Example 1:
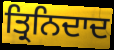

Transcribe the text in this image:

ਤ੍ਰਿਨਿਦਾਦ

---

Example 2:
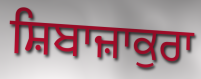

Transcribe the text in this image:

ਸ਼ਿਬਾਜ਼ਾਕੁਰਾ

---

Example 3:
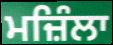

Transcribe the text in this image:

ਮਜ਼ਿੰਲਾ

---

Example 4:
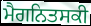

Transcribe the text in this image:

ਮੈਗਨਿਤਸਕੀ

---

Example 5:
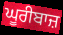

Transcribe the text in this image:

ਘੂਰੀਬਾਜ਼